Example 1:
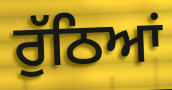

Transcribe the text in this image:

ਰੁੱਠਿਆਂ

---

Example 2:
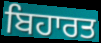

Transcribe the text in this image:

ਬਿਹਾਰਤ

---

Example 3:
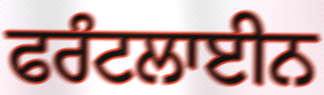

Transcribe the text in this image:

ਫਰੰਟਲਾਈਨ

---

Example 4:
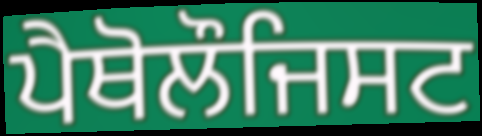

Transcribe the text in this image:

ਪੈਥੋਲੌਜਿਸਟ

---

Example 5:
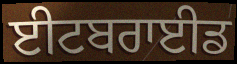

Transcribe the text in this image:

ਈਟਬਰਾਈਡ